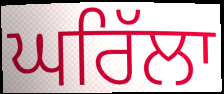
ਘਰਿੱਲਾ